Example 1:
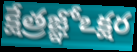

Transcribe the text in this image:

క్షేత్రజ్ఞోఽక్షర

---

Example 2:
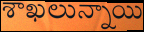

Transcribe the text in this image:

శాఖలున్నాయి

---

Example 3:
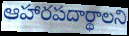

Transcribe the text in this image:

ఆహారపదార్థాలని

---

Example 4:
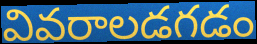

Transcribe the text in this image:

వివరాలడగడం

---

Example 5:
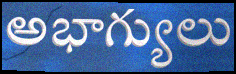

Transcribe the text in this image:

అభాగ్యులు